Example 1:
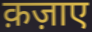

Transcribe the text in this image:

क़ज़ाए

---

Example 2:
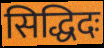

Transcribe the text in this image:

सिद्धिदः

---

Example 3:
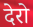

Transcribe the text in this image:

देरो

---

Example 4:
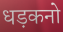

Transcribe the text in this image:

धड़कनो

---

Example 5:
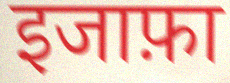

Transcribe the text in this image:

इजाफ़ा